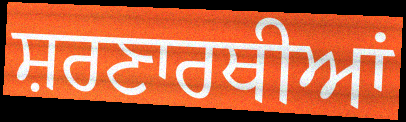
ਸ਼ਰਣਾਰਥੀਆਂ